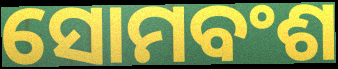
ସୋମବଂଶ